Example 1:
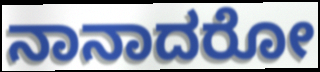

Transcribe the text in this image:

ನಾನಾದರೋ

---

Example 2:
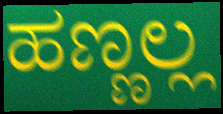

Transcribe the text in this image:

ಹಣ್ಣಲ್ಲ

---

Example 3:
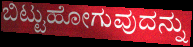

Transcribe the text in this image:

ಬಿಟ್ಟುಹೋಗುವುದನ್ನು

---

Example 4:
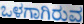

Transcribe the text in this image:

ಒಳಗಾಗಿರುವ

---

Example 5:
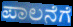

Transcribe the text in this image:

ಪಾಲನೆಗೆ